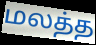
மலத்த